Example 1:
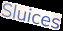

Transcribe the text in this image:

Sluices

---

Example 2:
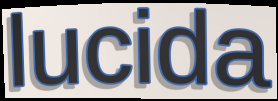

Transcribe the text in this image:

lucida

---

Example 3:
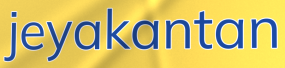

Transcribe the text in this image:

jeyakantan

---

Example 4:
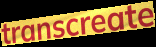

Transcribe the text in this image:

transcreate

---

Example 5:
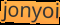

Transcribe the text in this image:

jonyoi